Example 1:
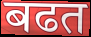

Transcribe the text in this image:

बढत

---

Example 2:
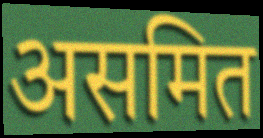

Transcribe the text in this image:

असमित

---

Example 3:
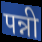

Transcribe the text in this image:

पन्नी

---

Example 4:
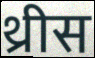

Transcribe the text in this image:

थ्रीस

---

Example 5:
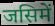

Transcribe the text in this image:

जसिमें